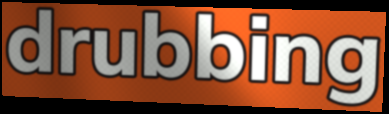
drubbing